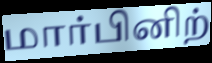
மார்பினிற்